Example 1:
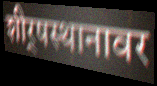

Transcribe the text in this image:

शीर्षस्थानावर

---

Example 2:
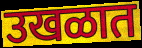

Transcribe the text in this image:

उखळात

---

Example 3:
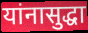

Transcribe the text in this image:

यांनासुद्धा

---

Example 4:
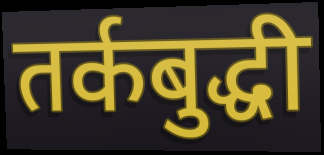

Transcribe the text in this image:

तर्कबुद्धी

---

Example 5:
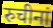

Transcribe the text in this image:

रुचीनां